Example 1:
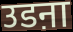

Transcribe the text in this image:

उडऩा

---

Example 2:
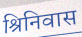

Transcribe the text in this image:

श्रिनिवास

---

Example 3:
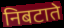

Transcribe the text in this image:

निबटाते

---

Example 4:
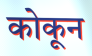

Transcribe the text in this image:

कोकून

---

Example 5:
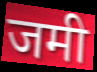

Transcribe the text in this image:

जमी